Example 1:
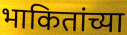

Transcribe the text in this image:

भाकितांच्या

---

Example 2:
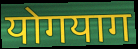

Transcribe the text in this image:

योगयाग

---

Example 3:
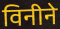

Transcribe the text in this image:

विनीने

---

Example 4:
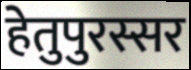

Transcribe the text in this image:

हेतुपुरस्सर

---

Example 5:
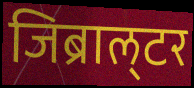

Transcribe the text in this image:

जिब्राल्टर